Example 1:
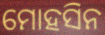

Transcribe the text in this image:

ମୋହସିନ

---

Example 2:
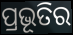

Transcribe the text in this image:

ପ୍ରଭୂତିର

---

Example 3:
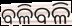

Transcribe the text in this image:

ବଳିବଳି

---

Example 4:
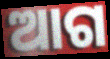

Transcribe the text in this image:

ଆଗ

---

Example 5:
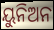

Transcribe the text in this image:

ୟୁନିଅନ